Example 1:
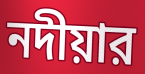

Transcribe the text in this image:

নদীয়ার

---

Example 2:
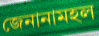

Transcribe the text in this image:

জেনানামহল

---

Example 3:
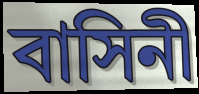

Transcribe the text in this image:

বাসিনী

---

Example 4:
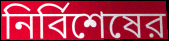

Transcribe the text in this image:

নির্বিশেষের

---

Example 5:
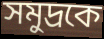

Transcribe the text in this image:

সমুদ্রকে